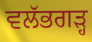
ਵਲੱਭਗੜ੍ਹ